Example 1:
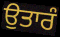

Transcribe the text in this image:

ਉਤਾਰੰ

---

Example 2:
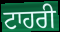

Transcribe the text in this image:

ਟਾਹਰੀ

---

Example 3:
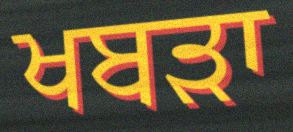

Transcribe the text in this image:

ਖਬੜਾ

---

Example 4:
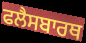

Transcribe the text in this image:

ਫਲੈਸਬਾਰਥ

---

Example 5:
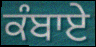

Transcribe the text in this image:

ਕੰਬਾਏ